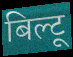
बिल्टू